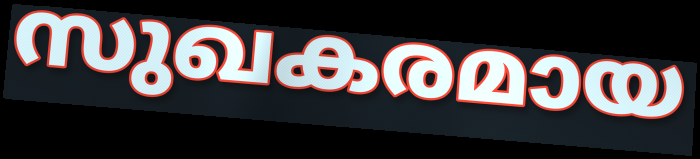
സുഖകരമായ